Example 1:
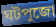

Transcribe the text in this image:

ঘটপুজো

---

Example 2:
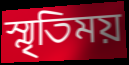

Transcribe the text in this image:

স্মৃতিময়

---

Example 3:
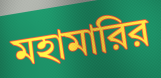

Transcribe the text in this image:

মহামারির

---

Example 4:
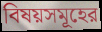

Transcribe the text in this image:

বিষয়সমূহের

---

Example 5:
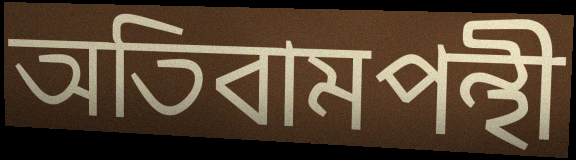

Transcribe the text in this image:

অতিবামপন্থী